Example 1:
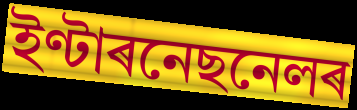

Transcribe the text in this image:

ইণ্টাৰনেছনেলৰ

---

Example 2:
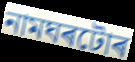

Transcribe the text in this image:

নামঘৰটোৰ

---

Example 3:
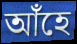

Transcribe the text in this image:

আঁহে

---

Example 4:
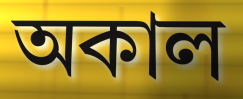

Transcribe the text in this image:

অকাল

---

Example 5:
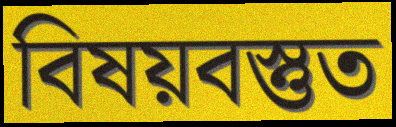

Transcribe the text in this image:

বিষয়বস্তুত